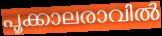
പൂക്കാലരാവിൽ